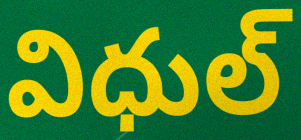
విధుల్